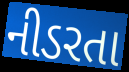
નીડરતા